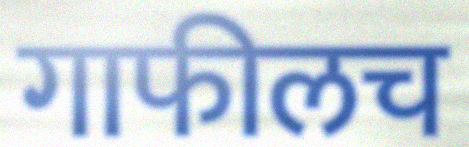
गाफीलच